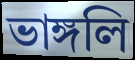
ভাঙ্গলি